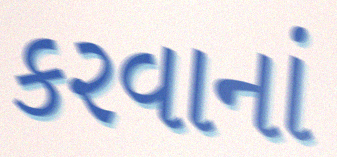
કરવાનાં